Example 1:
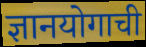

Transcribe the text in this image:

ज्ञानयोगाची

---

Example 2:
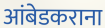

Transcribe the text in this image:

आंबेडकराना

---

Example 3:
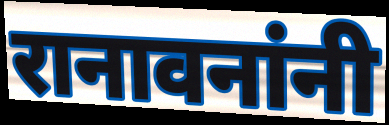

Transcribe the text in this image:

रानावनांनी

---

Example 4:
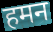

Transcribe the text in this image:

हमन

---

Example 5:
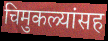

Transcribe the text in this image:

चिमुकल्यांसह